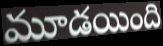
మూడయింది